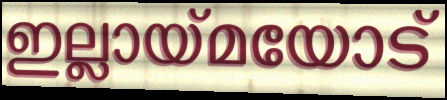
ഇല്ലായ്മയോട്